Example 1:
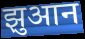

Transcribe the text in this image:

झुआन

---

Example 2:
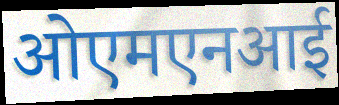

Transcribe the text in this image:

ओएमएनआई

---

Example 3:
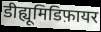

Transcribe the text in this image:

डीह्यूमिडिफ़ायर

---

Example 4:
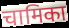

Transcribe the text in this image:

चामिका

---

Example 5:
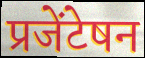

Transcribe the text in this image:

प्रजेंटेषन